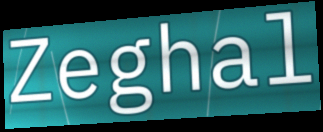
Zeghal